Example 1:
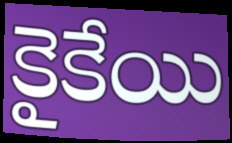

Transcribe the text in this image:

కైకేయి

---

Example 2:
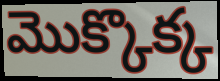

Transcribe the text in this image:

మొక్కొక్క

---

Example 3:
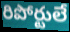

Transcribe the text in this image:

రిపోర్టులే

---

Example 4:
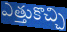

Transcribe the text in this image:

ఎత్తుకొచ్చి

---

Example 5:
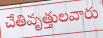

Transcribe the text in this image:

చేతివృత్తులవారు